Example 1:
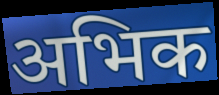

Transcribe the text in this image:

अभिक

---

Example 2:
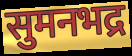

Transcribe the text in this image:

सुमनभद्र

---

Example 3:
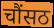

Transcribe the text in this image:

चौंसठ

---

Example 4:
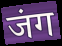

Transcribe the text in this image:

जंग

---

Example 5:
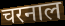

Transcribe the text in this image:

चरनाल